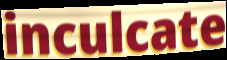
inculcate